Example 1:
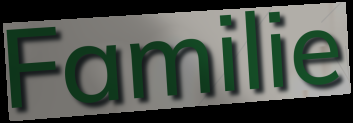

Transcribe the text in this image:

Familie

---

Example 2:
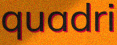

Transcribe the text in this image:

quadri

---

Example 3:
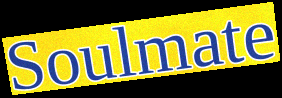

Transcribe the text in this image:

Soulmate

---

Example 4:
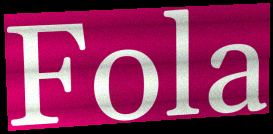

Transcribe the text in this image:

Fola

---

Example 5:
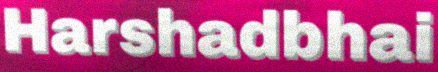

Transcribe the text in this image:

Harshadbhai